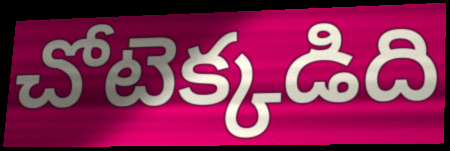
చోటెక్కడిది